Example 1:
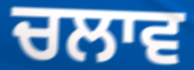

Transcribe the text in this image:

ਚਲਾਵ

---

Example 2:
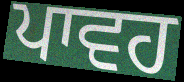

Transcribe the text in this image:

ਪਾਵਹ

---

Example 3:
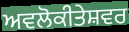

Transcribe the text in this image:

ਅਵਲੋਕੀਤੇਸ਼ਵਰ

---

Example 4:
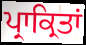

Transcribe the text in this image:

ਪ੍ਰਾਕ੍ਰਿਤਾਂ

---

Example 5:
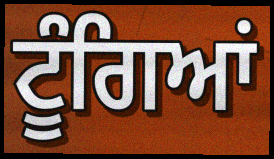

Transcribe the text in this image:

ਟੂੰਗਿਆਂ